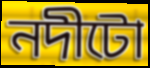
নদীটো